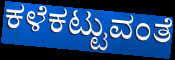
ಕಳೆಕಟ್ಟುವಂತೆ